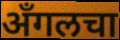
अँगलचा